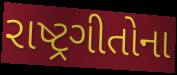
રાષ્ટ્રગીતોના